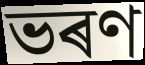
ভৰণ